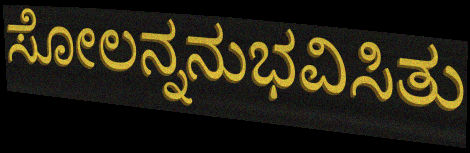
ಸೋಲನ್ನನುಭವಿಸಿತು